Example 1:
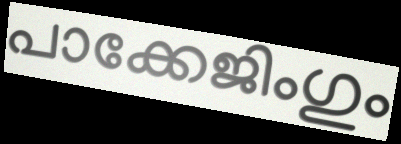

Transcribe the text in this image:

പാക്കേജിംഗും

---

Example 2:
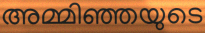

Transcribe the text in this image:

അമ്മിഞ്ഞയുടെ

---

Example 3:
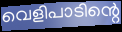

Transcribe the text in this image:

വെളിപാടിന്റെ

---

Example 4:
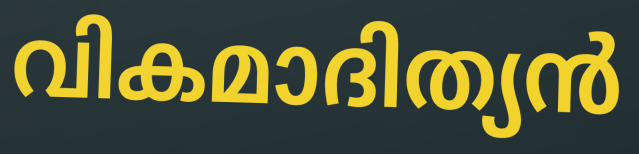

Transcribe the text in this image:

വികമാദിത്യൻ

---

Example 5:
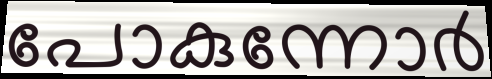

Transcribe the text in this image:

പോകുന്നോർ